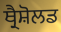
ਥ੍ਰੈਸ਼ੋਲਡ